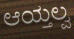
ಆಯ್ತಲ್ವ